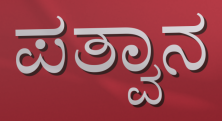
ಪತ್ವಾನ